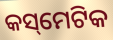
କସ୍‌ମେଟିକ